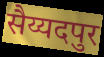
सैय्यदपुर